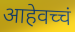
आहेवच्चं